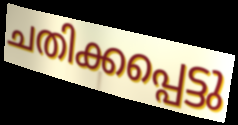
ചതിക്കപ്പെട്ടു